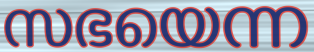
സഭയെന്ന